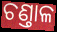
ଚଣ୍ତାଳ